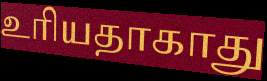
உரியதாகாது